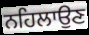
ਨਹਿਲਾਉਣ